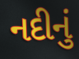
નદીનું